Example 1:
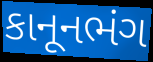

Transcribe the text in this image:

કાનૂનભંગ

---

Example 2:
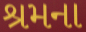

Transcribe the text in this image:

શ્રમના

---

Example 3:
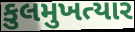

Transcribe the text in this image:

કુલમુખત્યાર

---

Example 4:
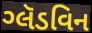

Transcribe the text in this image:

ગ્લૅડવિન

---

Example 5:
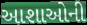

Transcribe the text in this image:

આશાઓની